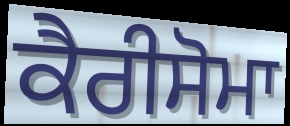
ਕੈਰੀਸੋਮਾ